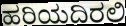
ಹರಿಯದಿರಲಿ